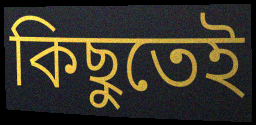
কিছুতেই